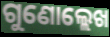
ଗୁଣୋଲ୍ଲେଖ